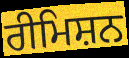
ਰੀਮਿਸ਼ਨ